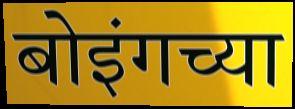
बोइंगच्या